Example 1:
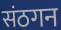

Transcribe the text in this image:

संठगन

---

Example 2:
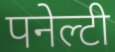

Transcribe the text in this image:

पनेल्टी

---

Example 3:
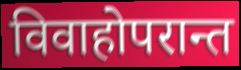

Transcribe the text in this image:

विवाहोपरान्त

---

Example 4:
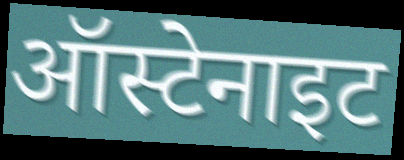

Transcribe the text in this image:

ऑस्टेनाइट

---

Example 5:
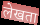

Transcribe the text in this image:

लेखता